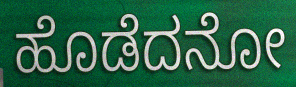
ಹೊಡೆದನೋ